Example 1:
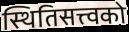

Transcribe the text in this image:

स्थितिसत्त्वको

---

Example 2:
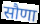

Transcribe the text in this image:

सौणा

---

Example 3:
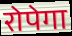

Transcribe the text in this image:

रोपेगा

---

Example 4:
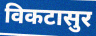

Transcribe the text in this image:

विकटासुर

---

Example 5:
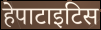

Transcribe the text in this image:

हेपाटाइटिस